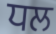
ਧਲ